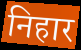
निहार